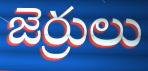
జెర్రులు